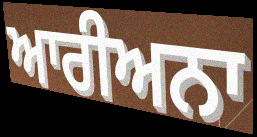
ਆਰੀਅਨਾ